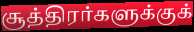
சூத்திரர்களுக்குக்